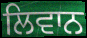
ਲਿਵਾਨ